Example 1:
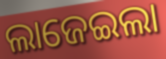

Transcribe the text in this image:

ଲାଜେଇଲା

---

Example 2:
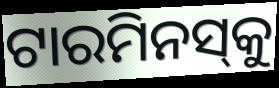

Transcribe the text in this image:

ଟାରମିନସ୍‌କୁ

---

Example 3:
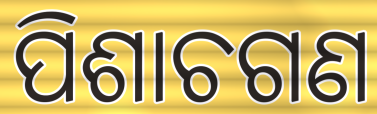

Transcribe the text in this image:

ପିଶାଚଗଣ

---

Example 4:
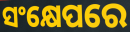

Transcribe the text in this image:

ସଂକ୍ଷେପରେ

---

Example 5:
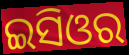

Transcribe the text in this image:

ଇସିଓର